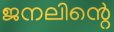
ജനലിന്റെ